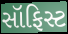
સૉફિસ્ટ